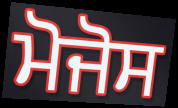
ਮੋਜੋਸ